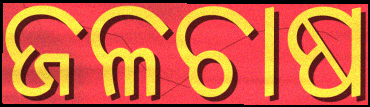
ଜଳଚାଷ